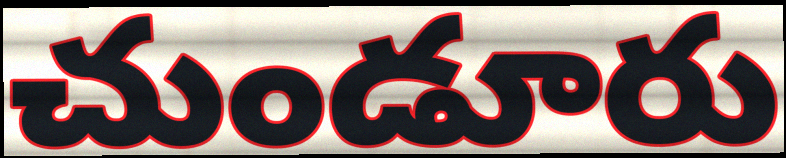
చుండూరు